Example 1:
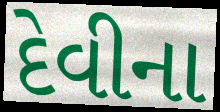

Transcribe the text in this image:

દેવીના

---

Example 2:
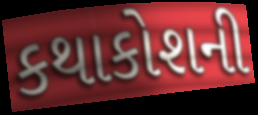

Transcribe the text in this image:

કથાકોશની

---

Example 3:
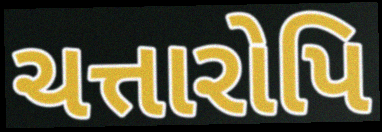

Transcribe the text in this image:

ચત્તારોપિ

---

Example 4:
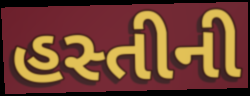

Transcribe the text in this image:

હસ્તીની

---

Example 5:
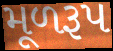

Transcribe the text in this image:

મૂળરૂપ